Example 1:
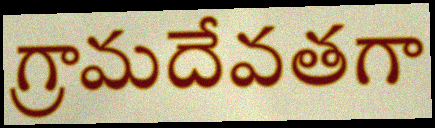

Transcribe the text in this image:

గ్రామదేవతగా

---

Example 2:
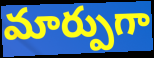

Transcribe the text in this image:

మార్పుగా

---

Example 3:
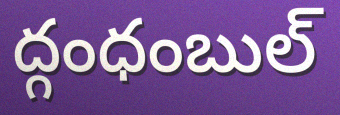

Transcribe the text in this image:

ద్గంధంబుల్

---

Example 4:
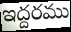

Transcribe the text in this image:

ఇద్దరము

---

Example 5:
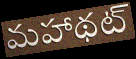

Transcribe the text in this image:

మహాథట్